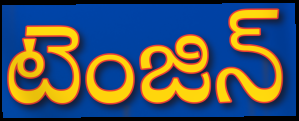
టెంజిన్